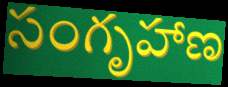
సంగృహాణ